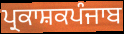
ਪ੍ਰਕਾਸ਼ਕਪੰਜਾਬ